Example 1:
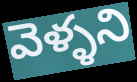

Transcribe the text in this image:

వెళ్ళని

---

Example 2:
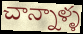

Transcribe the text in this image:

చాన్నాళ్ళ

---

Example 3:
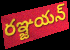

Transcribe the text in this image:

రఞ్జయన్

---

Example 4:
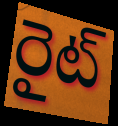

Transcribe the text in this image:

రైట్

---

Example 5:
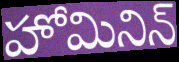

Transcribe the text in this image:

హోమినిన్